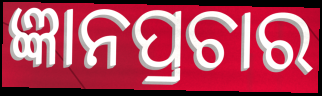
ଜ୍ଞାନପ୍ରଚାର